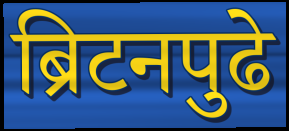
ब्रिटनपुढे